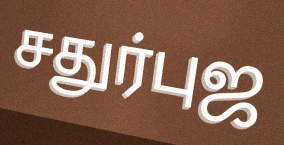
சதுர்புஜ